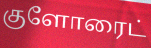
குளோரைட்